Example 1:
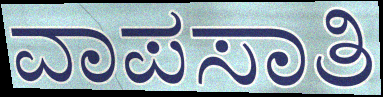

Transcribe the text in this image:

ವಾಪಸಾತಿ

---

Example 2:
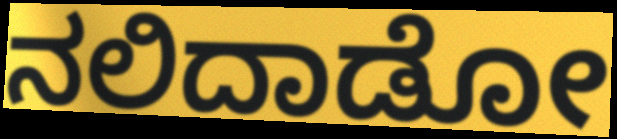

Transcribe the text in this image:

ನಲಿದಾಡೋ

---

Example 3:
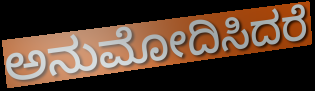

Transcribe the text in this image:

ಅನುಮೋದಿಸಿದರೆ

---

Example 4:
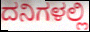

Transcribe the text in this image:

ದನಿಗಳಲ್ಲಿ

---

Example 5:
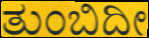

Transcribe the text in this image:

ತುಂಬಿದೀ